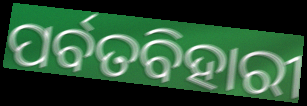
ପର୍ବତବିହାରୀ